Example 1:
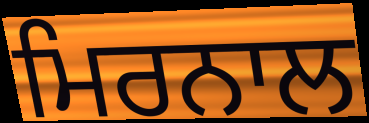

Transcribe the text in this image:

ਮਿਰਨਾਲ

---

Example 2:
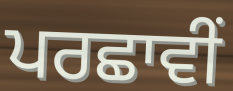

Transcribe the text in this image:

ਪਰਛਾਵੀਂ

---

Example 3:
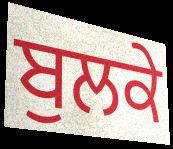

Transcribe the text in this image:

ਬੁਲਕੇ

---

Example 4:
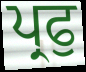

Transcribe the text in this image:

ਪ੍ਰਫੁ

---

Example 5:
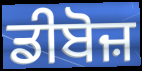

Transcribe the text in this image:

ਡੀਬੋਜ਼